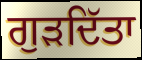
ਗੁੜਦਿੱਤਾ